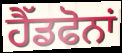
ਹੈੱਡਫੋਨਾਂ